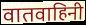
वातवाहिनी